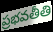
ప్రభవతీతి